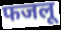
फजलू